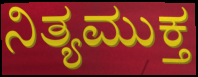
ನಿತ್ಯಮುಕ್ತ